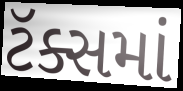
ટૅક્સમાં